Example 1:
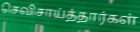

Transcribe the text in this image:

செவிசாய்த்தார்கள்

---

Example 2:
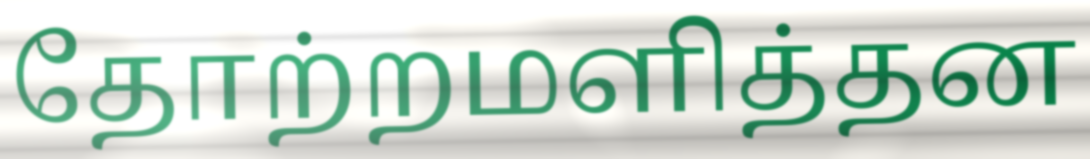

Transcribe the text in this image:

தோற்றமளித்தன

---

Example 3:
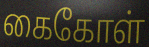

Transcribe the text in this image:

கைகோள்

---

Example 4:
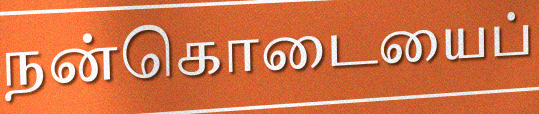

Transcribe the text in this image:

நன்கொடையைப்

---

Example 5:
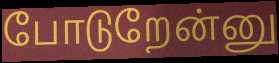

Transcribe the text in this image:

போடுறேன்னு